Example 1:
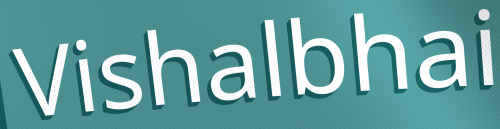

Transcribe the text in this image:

Vishalbhai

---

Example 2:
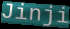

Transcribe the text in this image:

Jinji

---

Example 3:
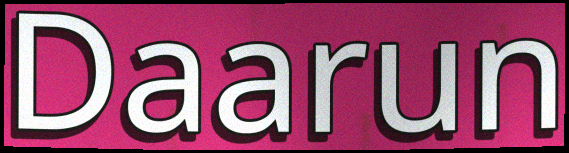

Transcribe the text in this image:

Daarun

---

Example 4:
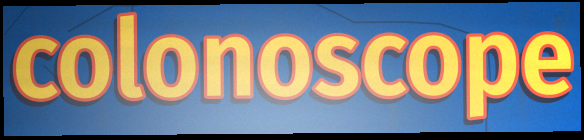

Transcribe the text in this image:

colonoscope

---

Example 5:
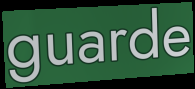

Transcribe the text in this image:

guarde